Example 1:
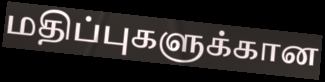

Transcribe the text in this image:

மதிப்புகளுக்கான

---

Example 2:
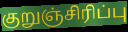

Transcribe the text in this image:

குறுஞ்சிரிப்பு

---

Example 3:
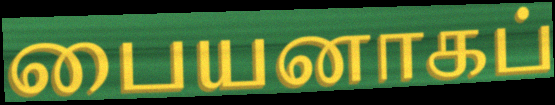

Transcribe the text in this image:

பையனாகப்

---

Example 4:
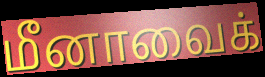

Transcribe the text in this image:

மீனாவைக்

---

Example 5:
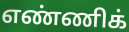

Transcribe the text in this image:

எண்ணிக்